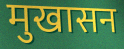
मुखासन